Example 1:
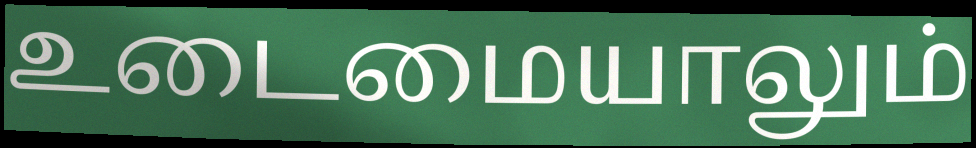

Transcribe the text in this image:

உடைமையாலும்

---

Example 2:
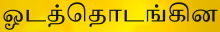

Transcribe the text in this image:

ஓடத்தொடங்கின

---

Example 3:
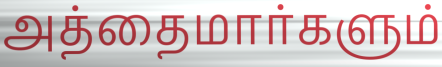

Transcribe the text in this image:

அத்தைமார்களும்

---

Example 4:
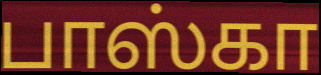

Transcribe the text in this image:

பாஸ்கா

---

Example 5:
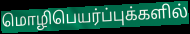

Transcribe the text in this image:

மொழிபெயர்ப்புக்களில்